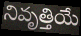
నివృత్తియే